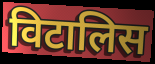
विटालिस